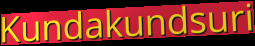
Kundakundsuri